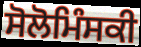
ਸੋਲੋਮਿੰਸਕੀ